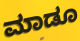
ಮಾಡೂ